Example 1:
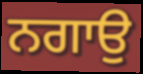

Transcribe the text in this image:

ਨਗਾਉ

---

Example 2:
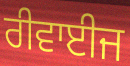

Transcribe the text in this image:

ਰੀਵਾਈਜ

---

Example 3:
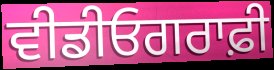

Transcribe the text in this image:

ਵੀਡੀਓਗਰਾਫ਼ੀ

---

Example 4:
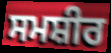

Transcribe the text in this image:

ਸਮਸ਼ੀਰ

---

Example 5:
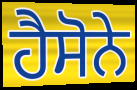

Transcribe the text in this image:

ਹੈਸੋਨੇ